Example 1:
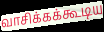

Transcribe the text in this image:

வாசிக்கக்கூடிய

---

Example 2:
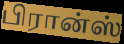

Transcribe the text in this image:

பிரான்ஸ்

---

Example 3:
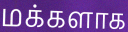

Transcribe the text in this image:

மக்களாக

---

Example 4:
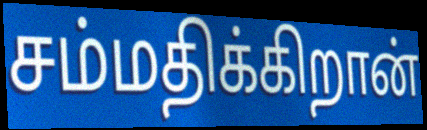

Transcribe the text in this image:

சம்மதிக்கிறான்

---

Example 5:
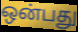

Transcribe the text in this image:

ஒன்பது